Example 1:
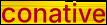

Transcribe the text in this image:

conative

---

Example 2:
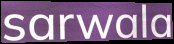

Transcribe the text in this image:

sarwala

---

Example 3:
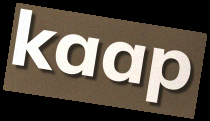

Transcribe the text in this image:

kaap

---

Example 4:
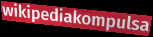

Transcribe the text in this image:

wikipediakompulsa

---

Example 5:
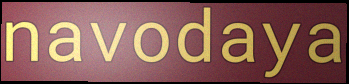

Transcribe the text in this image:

navodaya